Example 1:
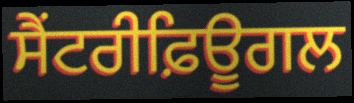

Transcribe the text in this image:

ਸੈਂਟਰੀਫ਼ਿਊਗਲ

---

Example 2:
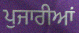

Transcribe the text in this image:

ਪੁਜਾਰੀਆਂ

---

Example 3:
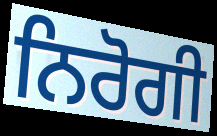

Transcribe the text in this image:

ਨਿਰੋਗੀ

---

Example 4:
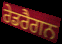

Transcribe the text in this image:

ਰੇਡਰੈਗਨ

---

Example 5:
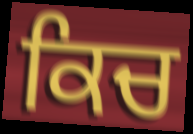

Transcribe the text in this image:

ਕਿਚ